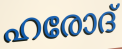
ഹരോദ്